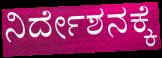
ನಿರ್ದೇಶನಕ್ಕೆ